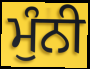
ਮੁੰਨੀ